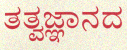
ತತ್ವಜ್ಞಾನದ